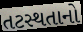
તટસ્થતાનો